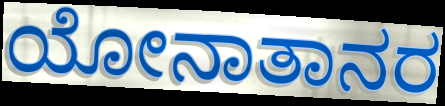
ಯೋನಾತಾನರ